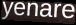
yenare